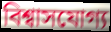
বিশ্বাসযোগ্য